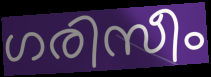
ഗരിസീം